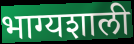
भाग्यशाली